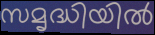
സമൃദ്ധിയിൽ